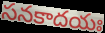
సనకాదయః